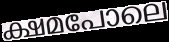
ക്ഷമപോലെ